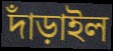
দাঁড়াইল